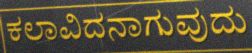
ಕಲಾವಿದನಾಗುವುದು